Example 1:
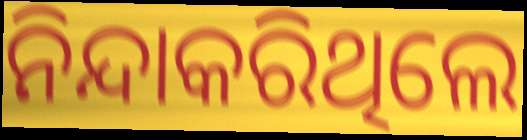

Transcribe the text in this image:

ନିନ୍ଦାକରିଥିଲେ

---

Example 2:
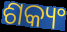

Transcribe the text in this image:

ଶକ୍ୟଂ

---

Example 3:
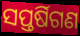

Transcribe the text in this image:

ସପ୍ତର୍ଷିଗଣ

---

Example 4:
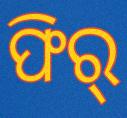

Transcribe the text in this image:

ଫିର୍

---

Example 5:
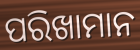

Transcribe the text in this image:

ପରିଖାମାନ